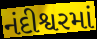
નંદીશ્વરમાં